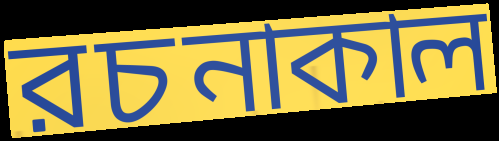
রচনাকাল